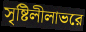
সৃষ্টিলীলাভরে